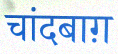
चांदबाग़